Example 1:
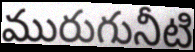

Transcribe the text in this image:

మురుగునీటి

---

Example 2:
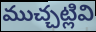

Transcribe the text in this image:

ముచ్చట్లివి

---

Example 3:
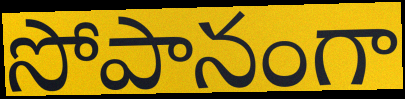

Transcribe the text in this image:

సోపానంగా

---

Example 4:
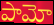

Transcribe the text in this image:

పామో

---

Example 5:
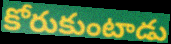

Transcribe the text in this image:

కోరుకుంటాడు